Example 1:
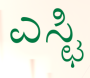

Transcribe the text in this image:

ಎಸ್ಟಿ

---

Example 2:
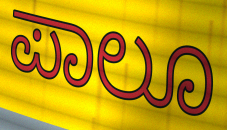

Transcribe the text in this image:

ಪಾಲೂ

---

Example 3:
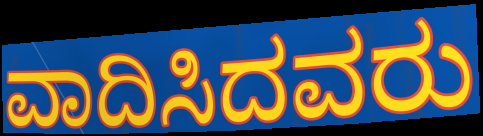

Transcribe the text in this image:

ವಾದಿಸಿದವರು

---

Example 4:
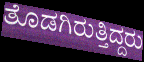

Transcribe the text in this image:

ತೊಡಗಿರುತ್ತಿದ್ದರು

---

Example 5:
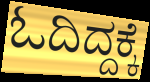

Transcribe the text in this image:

ಓದಿದ್ದಕ್ಕೆ